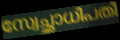
സ്വേച്ഛാധിപതി